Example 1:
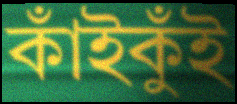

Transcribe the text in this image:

কাঁইকুঁই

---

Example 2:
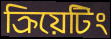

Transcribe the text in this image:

ক্রিয়েটিং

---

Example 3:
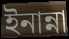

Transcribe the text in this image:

ইনান্না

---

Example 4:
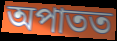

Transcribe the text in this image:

অপাতত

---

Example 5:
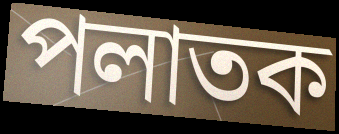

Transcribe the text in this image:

পলাতক